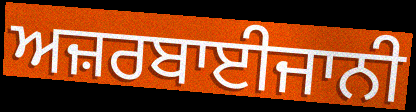
ਅਜ਼ਰਬਾਈਜਾਨੀ